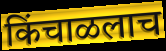
किंचाळलाच